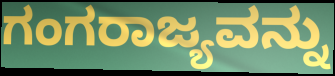
ಗಂಗರಾಜ್ಯವನ್ನು